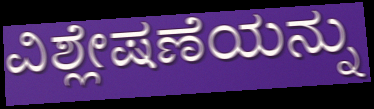
ವಿಶ್ಲೇಷಣೆಯನ್ನು